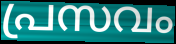
പ്രസവം